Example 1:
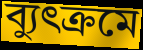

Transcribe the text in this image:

ব্যুৎক্রমে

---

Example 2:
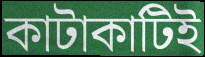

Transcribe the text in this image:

কাটাকাটিই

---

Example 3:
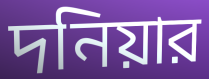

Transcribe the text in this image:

দনিয়ার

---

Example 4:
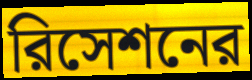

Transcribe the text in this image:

রিসেশনের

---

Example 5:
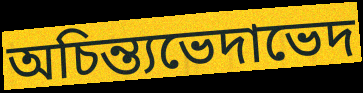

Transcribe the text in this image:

অচিন্ত্যভেদাভেদ